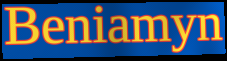
Beniamyn